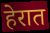
हेरात